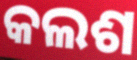
କଲଶ